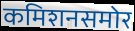
कमिशनसमोर